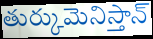
తుర్కుమెనిస్తాన్